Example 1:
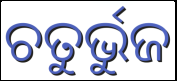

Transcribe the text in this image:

ଚତୁର୍ଭୁଜ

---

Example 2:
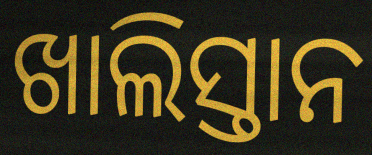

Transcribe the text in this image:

ଖାଲିସ୍ତାନ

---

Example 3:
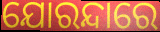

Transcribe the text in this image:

ଯୋରନ୍ଦାରେ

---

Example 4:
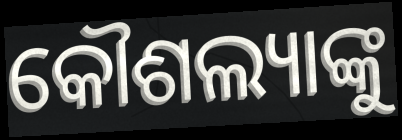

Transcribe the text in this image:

କୌଶଲ୍ୟାଙ୍କୁ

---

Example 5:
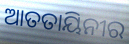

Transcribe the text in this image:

ଆତତାୟିନୀର